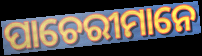
ପାଚେରୀମାନେ